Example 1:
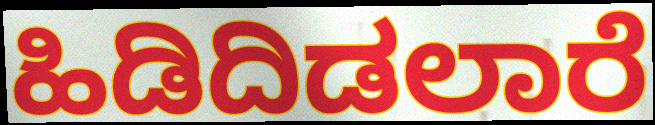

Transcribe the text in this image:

ಹಿಡಿದಿಡಲಾರೆ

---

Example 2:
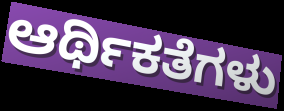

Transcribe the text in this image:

ಆರ್ಥಿಕತೆಗಳು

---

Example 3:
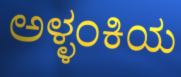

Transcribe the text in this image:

ಅಳ್ಳಂಕಿಯ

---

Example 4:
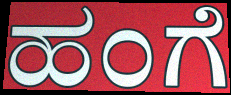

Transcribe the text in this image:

ಹಂಗೆ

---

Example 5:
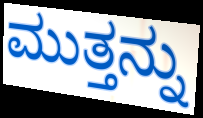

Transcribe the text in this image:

ಮುತ್ತನ್ನು